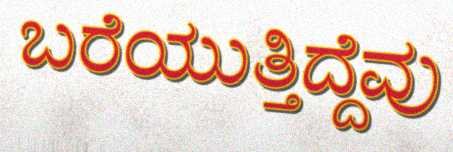
ಬರೆಯುತ್ತಿದ್ದೆವು